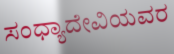
ಸಂಧ್ಯಾದೇವಿಯವರ